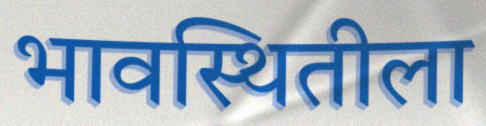
भावस्थितीला